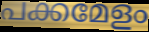
പക്കമേളം